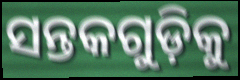
ସନ୍ତକଗୁଡ଼ିକୁ